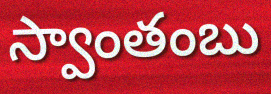
స్వాంతంబు